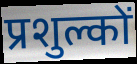
प्रशुल्कों